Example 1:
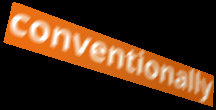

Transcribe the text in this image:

conventionally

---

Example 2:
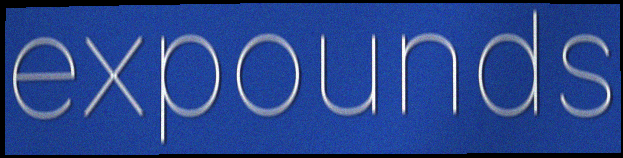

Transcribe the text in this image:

expounds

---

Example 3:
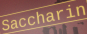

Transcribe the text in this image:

Saccharin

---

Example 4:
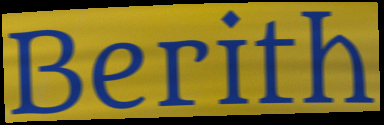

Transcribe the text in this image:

Berith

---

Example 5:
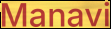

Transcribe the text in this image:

Manavi